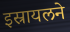
इस्रायलने